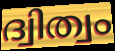
ദ്വിത്വം